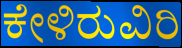
ಕೇಳಿರುವಿರಿ